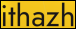
ithazh